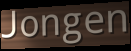
Jongen